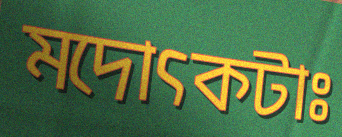
মদোৎকটাঃ